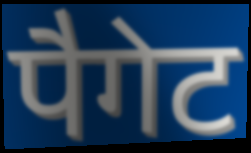
पैगेट